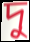
দু